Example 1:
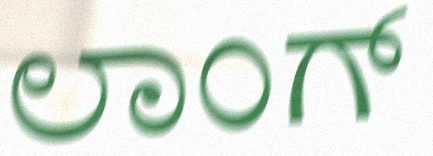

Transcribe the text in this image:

ಲಾಂಗ್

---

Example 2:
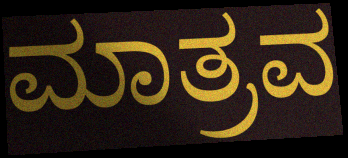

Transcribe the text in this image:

ಮಾತ್ರವ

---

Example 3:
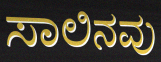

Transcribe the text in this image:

ಸಾಲಿನವು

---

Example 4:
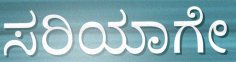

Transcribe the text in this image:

ಸರಿಯಾಗೇ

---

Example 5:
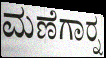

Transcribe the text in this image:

ಮಣೆಗಾರ್‍ನ